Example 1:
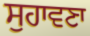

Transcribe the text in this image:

ਸੁਹਾਵਣਾ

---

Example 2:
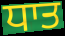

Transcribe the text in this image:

ਧਾਤ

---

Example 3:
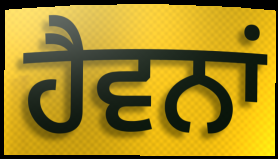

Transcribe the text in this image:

ਹੈਵਨਾਂ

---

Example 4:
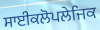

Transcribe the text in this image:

ਸਾਈਕਲੋਪਲੇਜਿਕ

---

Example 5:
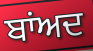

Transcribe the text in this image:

ਬਾਂਅਦ